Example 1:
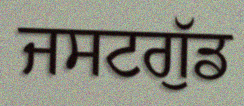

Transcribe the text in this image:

ਜਸਟਗੁੱਡ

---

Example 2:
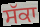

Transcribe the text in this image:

ਸੱਕਾ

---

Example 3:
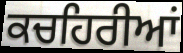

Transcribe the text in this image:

ਕਚਹਿਰੀਆਂ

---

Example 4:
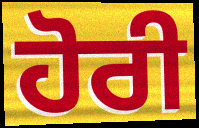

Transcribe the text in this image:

ਹੋਰੀ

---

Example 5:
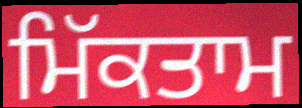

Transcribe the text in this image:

ਮਿੱਕਤਾਮ